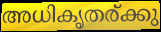
അധികൃതര്ക്കു